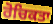
ਰੋਚਿਕਤਾ